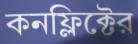
কনফ্লিক্টের